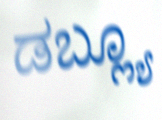
ಡಬ್ಲ್ಯೂ